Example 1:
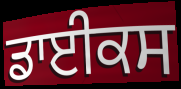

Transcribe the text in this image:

ਡਾਈਕਸ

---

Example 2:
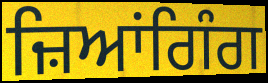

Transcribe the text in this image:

ਜ਼ਿਆਂਗਿੰਗ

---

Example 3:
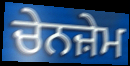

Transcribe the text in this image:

ਚੇਨਜ਼ੇਮ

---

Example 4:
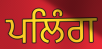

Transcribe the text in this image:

ਪਲਿੰਗ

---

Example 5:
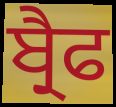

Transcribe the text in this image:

ਬ੍ਰੈਫ